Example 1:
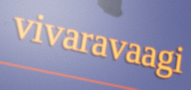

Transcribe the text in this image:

vivaravaagi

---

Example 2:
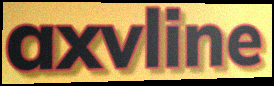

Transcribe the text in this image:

axvline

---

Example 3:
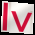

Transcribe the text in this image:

Iv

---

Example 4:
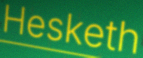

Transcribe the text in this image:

Hesketh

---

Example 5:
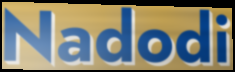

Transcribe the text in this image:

Nadodi